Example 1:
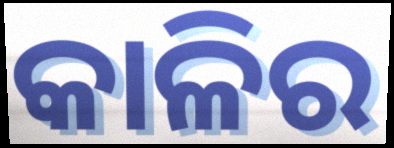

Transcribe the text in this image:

କାଳିର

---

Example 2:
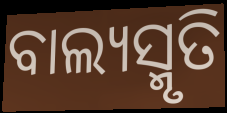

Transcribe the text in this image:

ବାଲ୍ୟସ୍ମୃତି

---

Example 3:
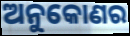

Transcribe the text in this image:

ଅନୁକୋଣର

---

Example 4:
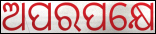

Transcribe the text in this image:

ଅପରପକ୍ଷେ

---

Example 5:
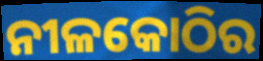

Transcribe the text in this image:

ନୀଳକୋଠିର